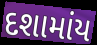
દશામાંય